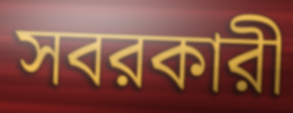
সবরকারী